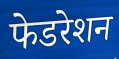
फेडरेशन